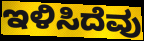
ಇಳಿಸಿದೆವು